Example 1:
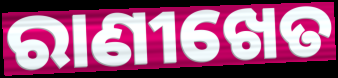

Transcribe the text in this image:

ରାଣୀଖେତ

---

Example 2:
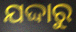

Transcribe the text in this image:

ଯଦ୍ଦାରୁ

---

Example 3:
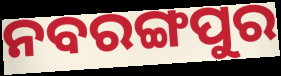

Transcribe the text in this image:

ନବରଙ୍ଗପୁର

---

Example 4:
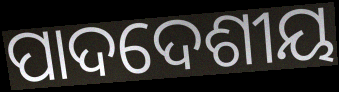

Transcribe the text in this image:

ପାଦଦେଶୀୟ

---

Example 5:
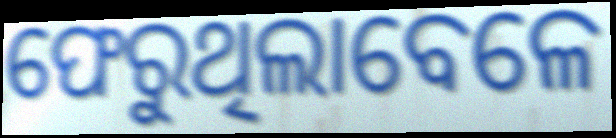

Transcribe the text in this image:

ଫେରୁଥିଲାବେଳେ